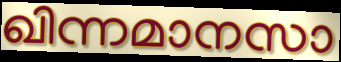
ഖിന്നമാനസാ